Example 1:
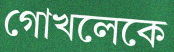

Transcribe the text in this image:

গোখলেকে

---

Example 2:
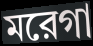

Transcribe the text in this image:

মরেগা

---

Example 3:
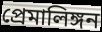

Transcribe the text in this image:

প্রেমালিঙ্গন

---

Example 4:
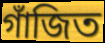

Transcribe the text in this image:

গাঁজিত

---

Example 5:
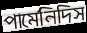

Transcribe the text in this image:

পার্মেনিদিস